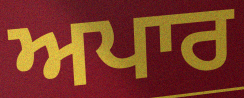
ਅਪਾਰ